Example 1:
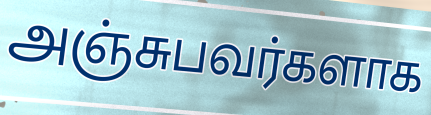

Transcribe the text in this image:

அஞ்சுபவர்களாக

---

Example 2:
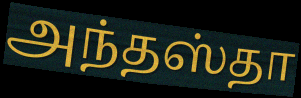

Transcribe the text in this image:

அந்தஸ்தா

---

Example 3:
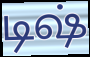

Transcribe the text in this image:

டிஷ்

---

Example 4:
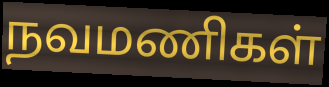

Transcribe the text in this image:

நவமணிகள்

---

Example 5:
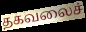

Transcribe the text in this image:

தகவலைச்